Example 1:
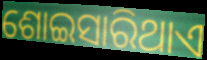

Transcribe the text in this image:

ଶୋଇସାରିଥାଏ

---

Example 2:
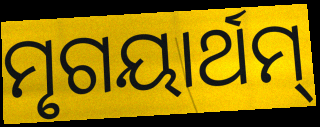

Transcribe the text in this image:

ମୃଗୟାର୍ଥମ୍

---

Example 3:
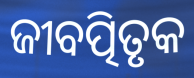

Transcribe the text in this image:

ଜୀବତ୍ପିତୃକ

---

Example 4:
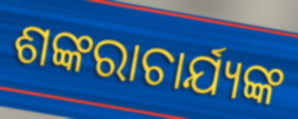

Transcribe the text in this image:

ଶଙ୍କରାଚାର୍ଯ୍ୟଙ୍କ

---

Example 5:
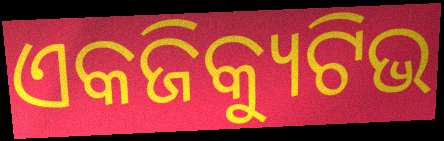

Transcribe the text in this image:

ଏକଜିକ୍ୟୁଟିଭ